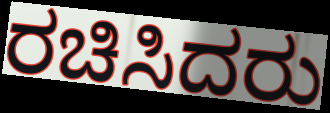
ರಚಿಸಿದರು